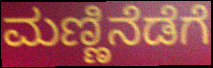
ಮಣ್ಣಿನೆಡೆಗೆ